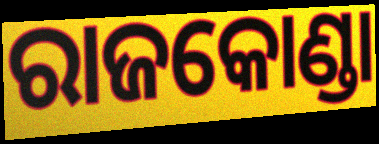
ରାଜକୋଣ୍ଡା